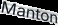
Manton